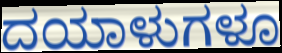
ದಯಾಳುಗಳೂ